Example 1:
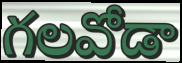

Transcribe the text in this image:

గలవోడా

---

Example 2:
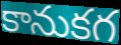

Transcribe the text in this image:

కానుకగ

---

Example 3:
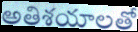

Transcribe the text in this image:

అతిశయాలతో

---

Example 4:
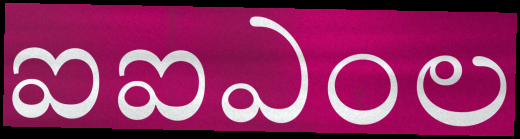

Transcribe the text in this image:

ఐఐఎంల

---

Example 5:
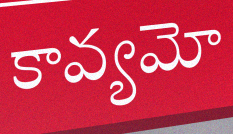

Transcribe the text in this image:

కావ్యమో